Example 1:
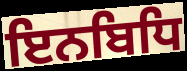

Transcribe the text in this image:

ਇਨਬਿਧਿ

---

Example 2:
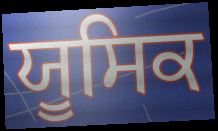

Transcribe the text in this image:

ਯੂਸਿਕ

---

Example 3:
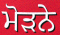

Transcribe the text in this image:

ਮੋੜਨੇ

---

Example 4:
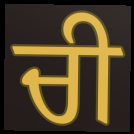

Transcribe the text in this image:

ਚੀ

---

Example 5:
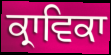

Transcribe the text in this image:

ਕ੍ਰਾਵਿਕਾ